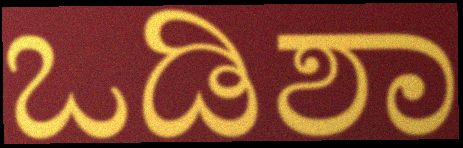
ಒಡಿಶಾ